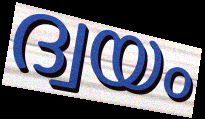
ദ്വയം